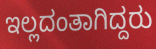
ಇಲ್ಲದಂತಾಗಿದ್ದರು